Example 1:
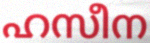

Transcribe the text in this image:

ഹസീന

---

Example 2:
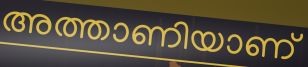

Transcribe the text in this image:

അത്താണിയാണ്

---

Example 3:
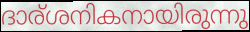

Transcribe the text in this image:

ദാര്ശനികനായിരുന്നു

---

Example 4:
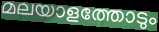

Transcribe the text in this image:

മലയാളത്തോടും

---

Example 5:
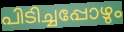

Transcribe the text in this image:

പിടിച്ചപ്പോഴും